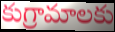
కుగ్రామాలకు